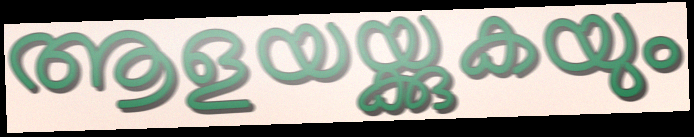
ആളയയ്ക്കുകയും